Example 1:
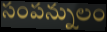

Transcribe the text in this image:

సంపన్నులం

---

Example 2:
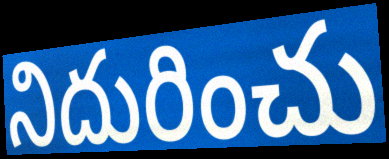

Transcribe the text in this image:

నిదురించు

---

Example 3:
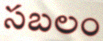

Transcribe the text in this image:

సబలం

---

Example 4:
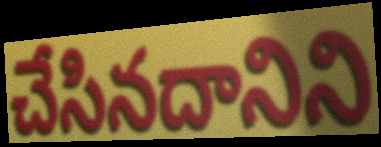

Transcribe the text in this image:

చేసినదానిని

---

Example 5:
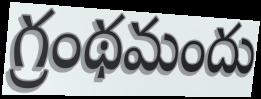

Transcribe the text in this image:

గ్రంథమందు